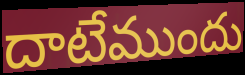
దాటేముందు